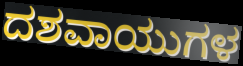
ದಶವಾಯುಗಳ